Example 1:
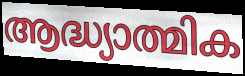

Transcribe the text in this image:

ആദ്ധ്യാത്മിക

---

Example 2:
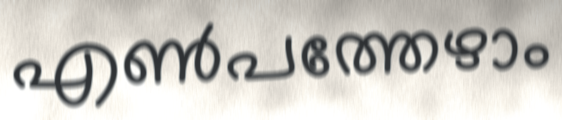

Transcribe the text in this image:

എൺപത്തേഴാം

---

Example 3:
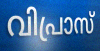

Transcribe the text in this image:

വിപ്രാസ്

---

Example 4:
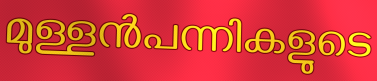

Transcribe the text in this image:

മുള്ളൻപന്നികളുടെ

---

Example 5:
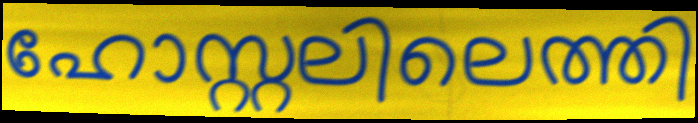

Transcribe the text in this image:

ഹോസ്റ്റലിലെത്തി